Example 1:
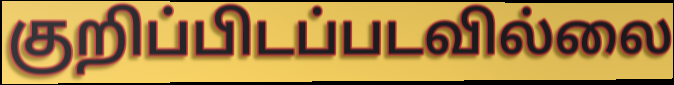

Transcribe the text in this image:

குறிப்பிடப்படவில்லை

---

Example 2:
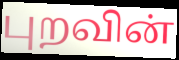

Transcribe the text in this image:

புறவின்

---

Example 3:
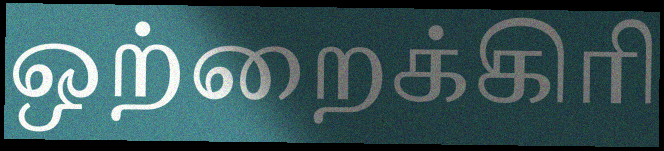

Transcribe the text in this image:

ஒற்றைக்கிரி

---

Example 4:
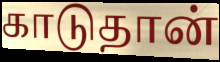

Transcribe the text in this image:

காடுதான்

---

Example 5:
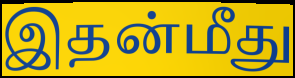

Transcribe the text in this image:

இதன்மீது